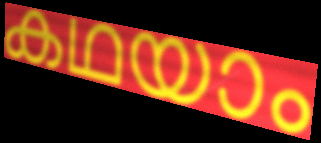
കഥയാം